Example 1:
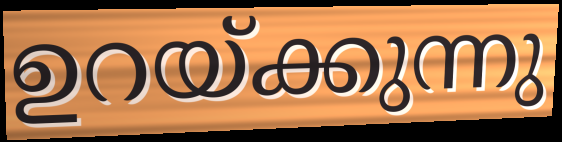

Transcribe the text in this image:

ഉറയ്ക്കുന്നു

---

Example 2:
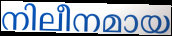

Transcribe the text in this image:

നിലീനമായ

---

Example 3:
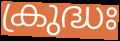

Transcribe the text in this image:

ക്രുദ്ധഃ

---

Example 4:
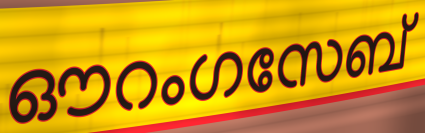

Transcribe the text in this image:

ഔറംഗസേബ്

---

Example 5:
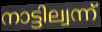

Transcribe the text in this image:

നാട്ടില്വന്ന്